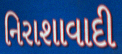
નિરાશાવાદી